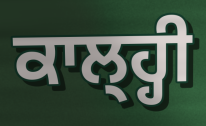
ਕਾਲ੍ਹ੍ਹੀ